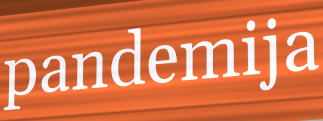
pandemija